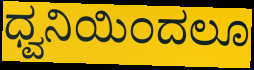
ಧ್ವನಿಯಿಂದಲೂ